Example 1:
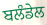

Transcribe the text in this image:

ਬਲੰਡੇਲ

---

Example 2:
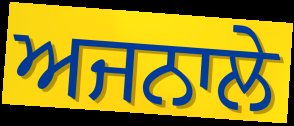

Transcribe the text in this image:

ਅਜਨਾਲੇ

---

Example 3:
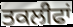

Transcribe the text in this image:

ਤਕਲੀਫਾਂ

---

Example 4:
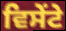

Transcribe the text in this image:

ਵਿਸੇਂਟੇ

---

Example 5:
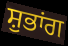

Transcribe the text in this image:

ਸ਼ੁਭਾਂਗ